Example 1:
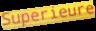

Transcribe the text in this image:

Superieure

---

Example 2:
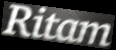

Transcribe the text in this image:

Ritam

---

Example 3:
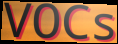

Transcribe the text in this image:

VOCs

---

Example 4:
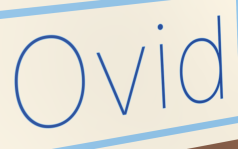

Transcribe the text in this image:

Ovid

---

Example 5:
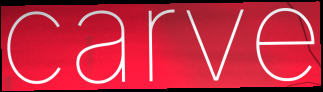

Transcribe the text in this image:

carve